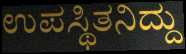
ಉಪಸ್ಥಿತನಿದ್ದು